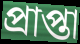
প্রাপ্তা